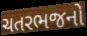
ચતરભજનો